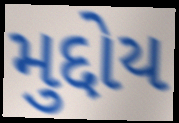
મુદ્દોય